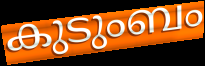
കുടുംബം